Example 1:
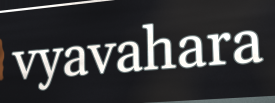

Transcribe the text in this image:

vyavahara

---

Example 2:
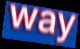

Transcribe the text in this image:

way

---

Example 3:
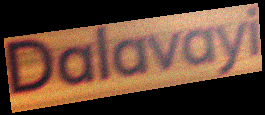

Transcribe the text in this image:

Dalavayi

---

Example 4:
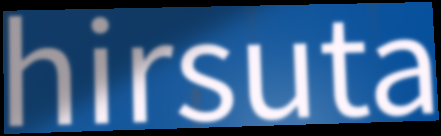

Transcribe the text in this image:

hirsuta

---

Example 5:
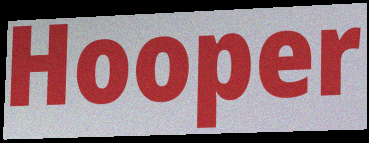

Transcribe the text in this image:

Hooper